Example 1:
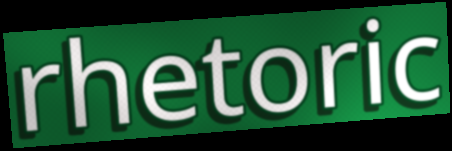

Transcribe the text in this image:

rhetoric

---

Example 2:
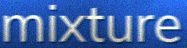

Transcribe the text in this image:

mixture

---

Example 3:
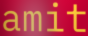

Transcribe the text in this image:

amit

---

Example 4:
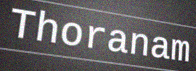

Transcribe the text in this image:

Thoranam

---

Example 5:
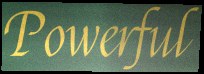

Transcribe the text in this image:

Powerful